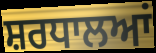
ਸ਼ਰਧਾਲਆਂ